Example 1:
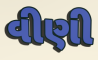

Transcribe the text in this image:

વીણી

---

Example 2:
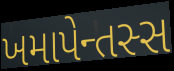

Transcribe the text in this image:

ખમાપેન્તસ્સ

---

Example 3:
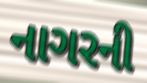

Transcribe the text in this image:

નાગરની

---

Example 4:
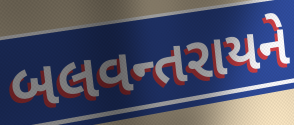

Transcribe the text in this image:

બલવન્તરાયને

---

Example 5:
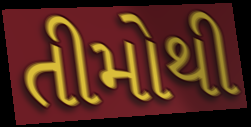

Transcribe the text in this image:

તીમોથી